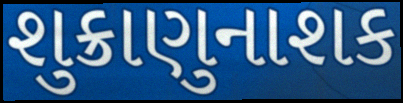
શુક્રાણુનાશક